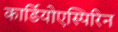
कार्डियोएस्पिरिन